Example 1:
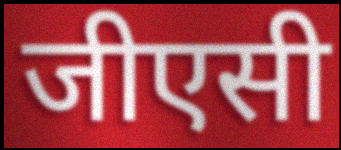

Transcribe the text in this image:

जीएसी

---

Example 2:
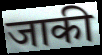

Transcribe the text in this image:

जाकी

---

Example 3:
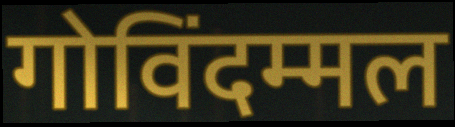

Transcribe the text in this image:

गोविंदम्मल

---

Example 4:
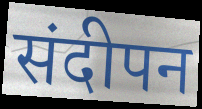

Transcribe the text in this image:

संदीपन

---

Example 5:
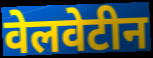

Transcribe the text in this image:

वेलवेटीन